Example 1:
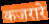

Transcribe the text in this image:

कजरारे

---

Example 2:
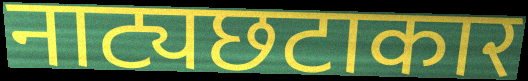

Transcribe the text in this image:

नाट्यछटाकार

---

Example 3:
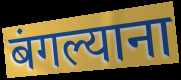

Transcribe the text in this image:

बंगल्याना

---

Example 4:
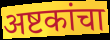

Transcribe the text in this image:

अष्टकांचा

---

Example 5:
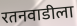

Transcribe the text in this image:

रतनवाडीला